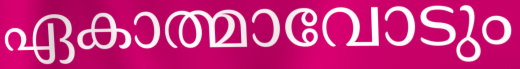
ഏകാത്മാവോടും